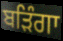
ਬੜਿੰਗਾ